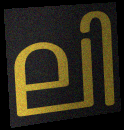
ലി